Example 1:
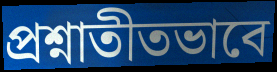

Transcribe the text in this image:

প্রশ্নাতীতভাবে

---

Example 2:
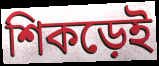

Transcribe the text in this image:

শিকড়েই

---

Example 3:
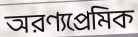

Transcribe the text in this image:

অরণ্যপ্রেমিক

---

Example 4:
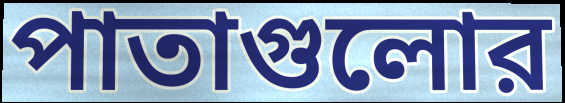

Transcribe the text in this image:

পাতাগুলোর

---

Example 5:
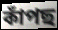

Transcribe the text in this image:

কাঁপছ